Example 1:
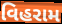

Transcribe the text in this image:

વિહરામ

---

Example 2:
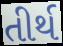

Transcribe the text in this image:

તીર્થ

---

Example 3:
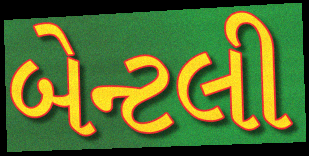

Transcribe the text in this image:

બેન્ટલી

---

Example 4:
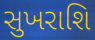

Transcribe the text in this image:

સુખરાશિ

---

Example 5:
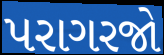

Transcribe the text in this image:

પરાગરજો